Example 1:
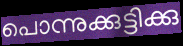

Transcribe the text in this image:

പൊന്നുക്കുട്ടിക്കു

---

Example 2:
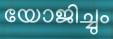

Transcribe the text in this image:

യോജിച്ചും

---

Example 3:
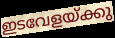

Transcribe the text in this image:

ഇടവേളയ്ക്കു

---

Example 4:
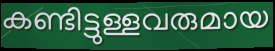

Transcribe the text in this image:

കണ്ടിട്ടുള്ളവരുമായ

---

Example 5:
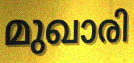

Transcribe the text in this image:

മുഖാരി